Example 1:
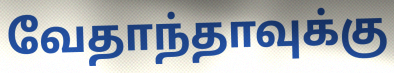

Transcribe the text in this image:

வேதாந்தாவுக்கு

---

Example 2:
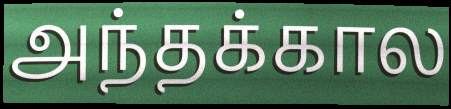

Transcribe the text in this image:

அந்தக்கால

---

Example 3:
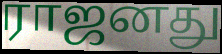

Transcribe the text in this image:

ராஜனது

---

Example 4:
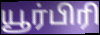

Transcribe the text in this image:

யூர்பிரி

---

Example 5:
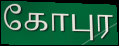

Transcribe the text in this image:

கோபுர